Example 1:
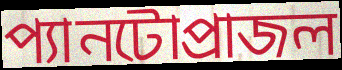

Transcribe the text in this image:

প্যানটোপ্রাজল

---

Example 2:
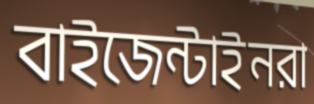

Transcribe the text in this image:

বাইজেন্টাইনরা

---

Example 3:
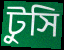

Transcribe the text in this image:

টুসি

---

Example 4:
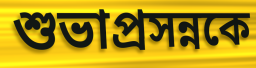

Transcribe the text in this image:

শুভাপ্রসন্নকে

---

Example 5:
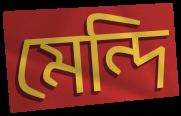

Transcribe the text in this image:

মেন্দি